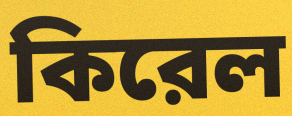
কিরেল